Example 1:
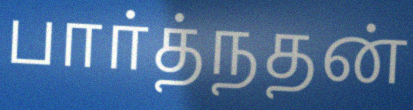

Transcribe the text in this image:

பார்த்நதன்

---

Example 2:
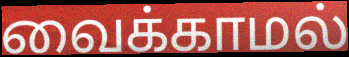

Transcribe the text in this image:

வைக்காமல்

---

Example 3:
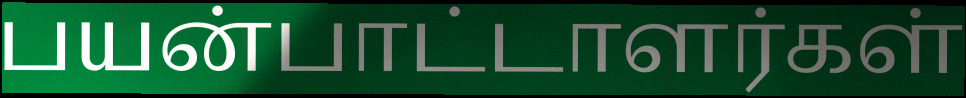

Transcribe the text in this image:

பயன்பாட்டாளர்கள்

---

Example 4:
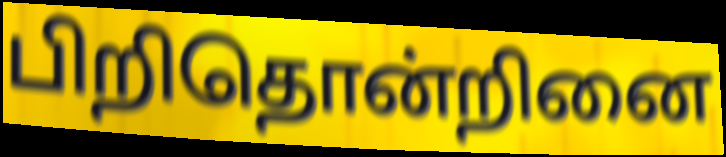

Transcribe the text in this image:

பிறிதொன்றினை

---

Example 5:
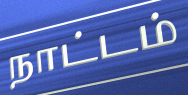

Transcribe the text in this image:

நாட்டம்